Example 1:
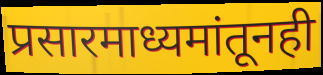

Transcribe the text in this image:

प्रसारमाध्यमांतूनही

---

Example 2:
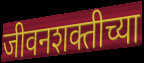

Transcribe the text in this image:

जीवनशक्तीच्या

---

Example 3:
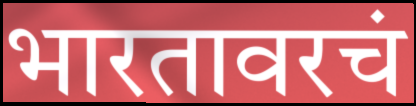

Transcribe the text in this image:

भारतावरचं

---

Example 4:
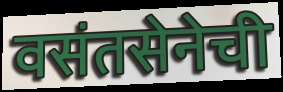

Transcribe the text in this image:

वसंतसेनेची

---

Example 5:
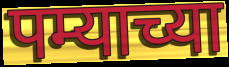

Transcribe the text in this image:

पम्याच्या